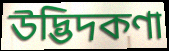
উদ্ভিদকণা